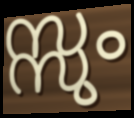
സ്സും